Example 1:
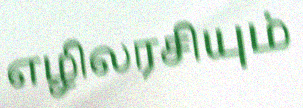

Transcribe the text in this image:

எழிலரசியும்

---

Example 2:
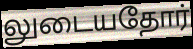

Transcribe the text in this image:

லுடையதோர்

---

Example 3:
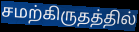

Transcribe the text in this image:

சமற்கிருதத்தில்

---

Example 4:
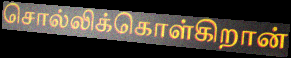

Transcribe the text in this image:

சொல்லிக்கொள்கிறான்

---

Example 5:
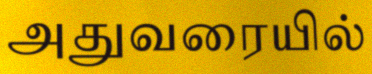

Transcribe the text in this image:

அதுவரையில்